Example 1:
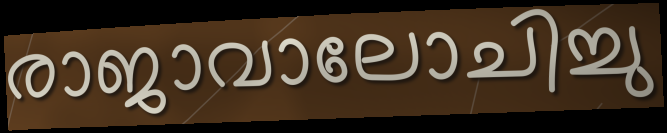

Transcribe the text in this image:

രാജാവാലോചിച്ചു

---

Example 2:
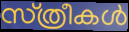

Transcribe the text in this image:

സ്‌ത്രീകൾ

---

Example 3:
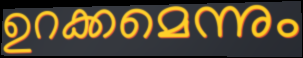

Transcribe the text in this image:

ഉറക്കമെന്നും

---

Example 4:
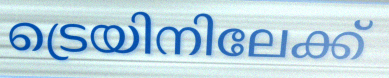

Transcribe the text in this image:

ട്രെയിനിലേക്ക്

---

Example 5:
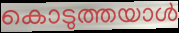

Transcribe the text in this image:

കൊടുത്തയാൾ